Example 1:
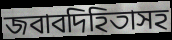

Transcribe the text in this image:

জবাবদিহিতাসহ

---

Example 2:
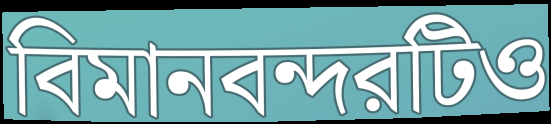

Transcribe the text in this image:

বিমানবন্দরটিও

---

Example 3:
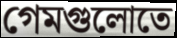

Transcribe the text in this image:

গেমগুলোতে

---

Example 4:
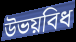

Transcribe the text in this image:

উভয়বিধ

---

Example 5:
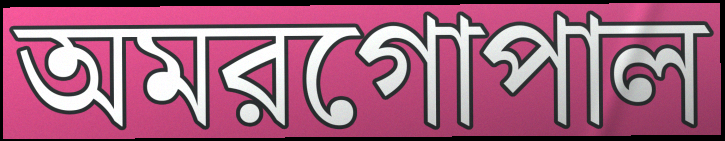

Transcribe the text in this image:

অমরগোপাল